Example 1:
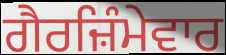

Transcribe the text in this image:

ਗੈਰਜ਼ਿੰਮੇਵਾਰ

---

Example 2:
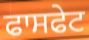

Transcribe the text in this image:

ਫਾਸਫੇਟ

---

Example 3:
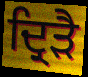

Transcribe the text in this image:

ਦ੍ਰਿੜੈ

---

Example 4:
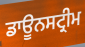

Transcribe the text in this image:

ਡਾਊਨਸਟ੍ਰੀਮ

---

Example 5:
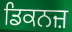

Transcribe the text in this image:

ਡਿਕਨਜ਼